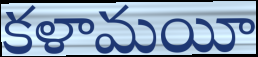
కళామయీ